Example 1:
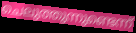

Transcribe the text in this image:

ചെലുത്തുന്നുണ്ടെന്ന്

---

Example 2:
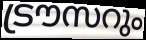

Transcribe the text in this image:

ട്രൗസറും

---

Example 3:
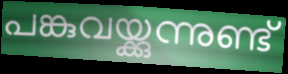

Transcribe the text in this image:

പങ്കുവയ്ക്കുന്നുണ്ട്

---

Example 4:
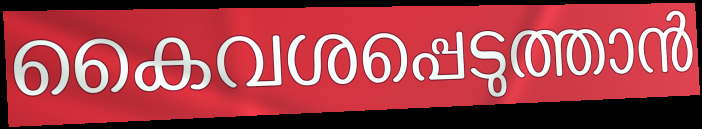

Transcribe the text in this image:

കൈവശപ്പെടുത്താൻ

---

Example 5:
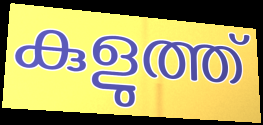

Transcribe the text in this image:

കുളുത്ത്